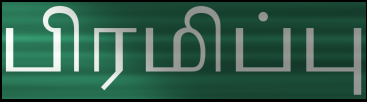
பிரமிப்பு